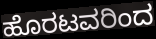
ಹೊರಟವರಿಂದ